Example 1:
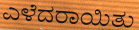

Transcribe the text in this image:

ಎಳೆದರಾಯಿತು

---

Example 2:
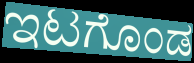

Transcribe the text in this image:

ಇಟಗೊಂಡ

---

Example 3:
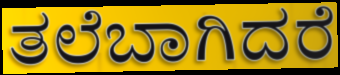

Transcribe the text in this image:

ತಲೆಬಾಗಿದರೆ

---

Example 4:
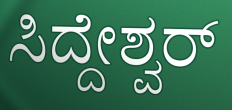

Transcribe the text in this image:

ಸಿದ್ದೇಶ್ವರ್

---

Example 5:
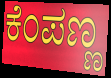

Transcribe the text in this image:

ಕೆಂಪಣ್ಣ